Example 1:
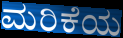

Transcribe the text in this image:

ಮರಿಕೆಯ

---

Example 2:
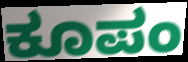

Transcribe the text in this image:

ಕೂಪಂ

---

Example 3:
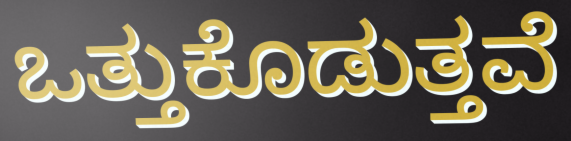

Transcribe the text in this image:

ಒತ್ತುಕೊಡುತ್ತವೆ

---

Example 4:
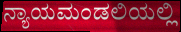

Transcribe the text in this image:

ನ್ಯಾಯಮಂಡಲಿಯಲ್ಲಿ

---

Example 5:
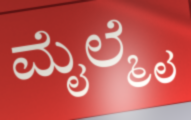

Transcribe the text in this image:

ಮೈಲ್ಮೈ